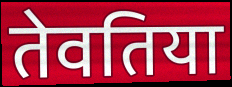
तेवतिया